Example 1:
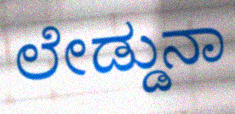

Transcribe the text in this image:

ಲೇಡ್ಡುನಾ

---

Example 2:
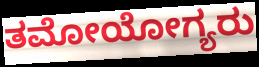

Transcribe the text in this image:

ತಮೋಯೋಗ್ಯರು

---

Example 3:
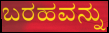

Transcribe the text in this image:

ಬರಹವನ್ನು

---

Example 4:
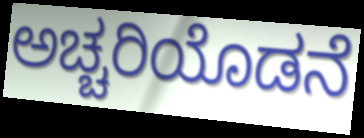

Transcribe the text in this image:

ಅಚ್ಚರಿಯೊಡನೆ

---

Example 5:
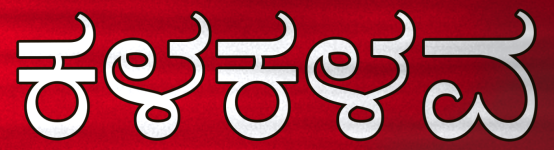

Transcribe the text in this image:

ಕಳಕಳವ